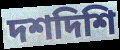
দশদিশি